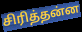
சிரித்தன்ன